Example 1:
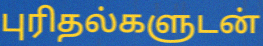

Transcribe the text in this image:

புரிதல்களுடன்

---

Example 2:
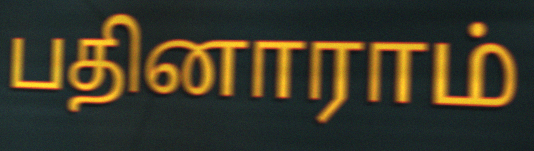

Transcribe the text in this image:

பதினாராம்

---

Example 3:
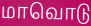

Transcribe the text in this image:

மாவொடு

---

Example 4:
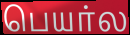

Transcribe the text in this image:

பெயர்ல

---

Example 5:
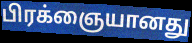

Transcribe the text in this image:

பிரக்ஞையானது